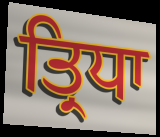
ਤ੍ਰਿਧਾ